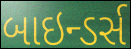
બાઇન્ડર્સ